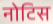
नोटिस